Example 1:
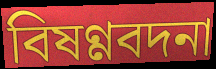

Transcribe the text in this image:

বিষণ্ণবদনা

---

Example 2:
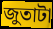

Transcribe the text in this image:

জুতাটা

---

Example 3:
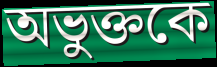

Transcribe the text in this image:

অভুক্তকে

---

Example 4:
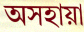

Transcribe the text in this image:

অসহায়া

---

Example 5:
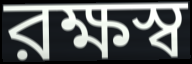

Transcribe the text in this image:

রক্ষস্ব